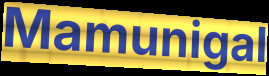
Mamunigal